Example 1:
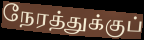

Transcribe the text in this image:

நேரத்துக்குப்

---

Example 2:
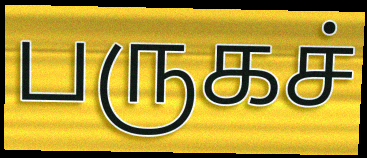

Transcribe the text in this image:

பருகச்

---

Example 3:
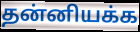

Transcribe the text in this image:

தன்னியக்க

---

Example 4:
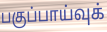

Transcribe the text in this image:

பகுப்பாய்வுக்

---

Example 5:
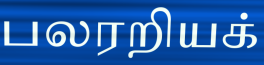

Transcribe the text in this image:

பலரறியக்